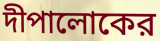
দীপালোকের